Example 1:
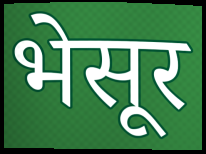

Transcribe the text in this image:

भेसूर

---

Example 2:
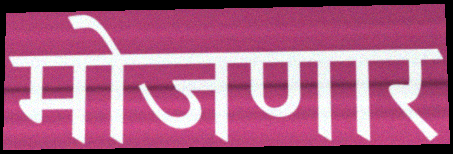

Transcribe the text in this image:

मोजणार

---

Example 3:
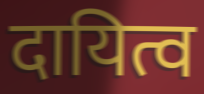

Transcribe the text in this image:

दायित्व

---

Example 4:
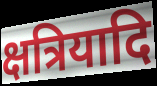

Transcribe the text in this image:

क्षत्रियादि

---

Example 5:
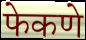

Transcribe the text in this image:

फेकणे